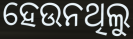
ହେଉନଥିଲୁ